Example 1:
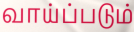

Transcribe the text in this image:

வாய்ப்படும்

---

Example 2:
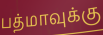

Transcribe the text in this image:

பத்மாவுக்கு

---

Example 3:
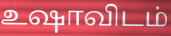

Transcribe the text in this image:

உஷாவிடம்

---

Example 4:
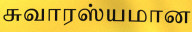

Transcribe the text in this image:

சுவாரஸ்யமான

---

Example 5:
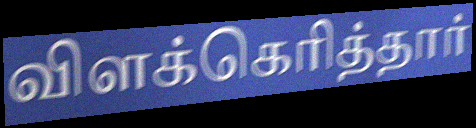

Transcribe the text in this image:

விளக்கெரித்தார்